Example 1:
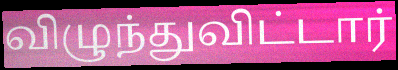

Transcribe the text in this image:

விழுந்துவிட்டார்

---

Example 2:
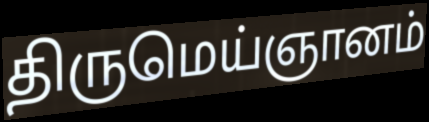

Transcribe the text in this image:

திருமெய்ஞானம்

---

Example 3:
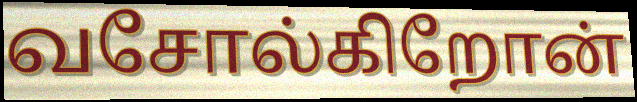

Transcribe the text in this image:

வசோல்கிறோன்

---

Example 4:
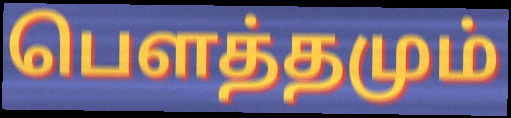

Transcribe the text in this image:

பௌத்தமும்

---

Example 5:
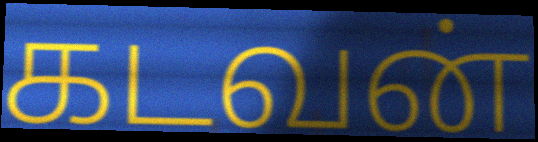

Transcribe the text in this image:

கடவன்